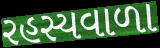
રહસ્યવાળા